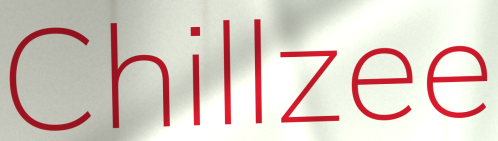
Chillzee